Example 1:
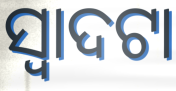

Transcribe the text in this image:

ସ୍ଵାଦଟା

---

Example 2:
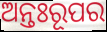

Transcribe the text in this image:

ଅନ୍ତଃରୂପର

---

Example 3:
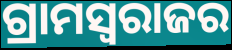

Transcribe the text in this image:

ଗ୍ରାମସ୍ୱରାଜର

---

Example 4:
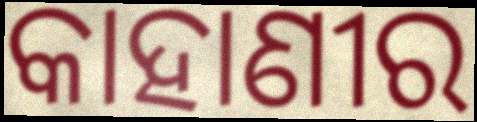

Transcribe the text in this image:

କାହାଣୀର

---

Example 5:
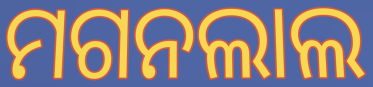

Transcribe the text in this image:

ମଗନଲାଲ